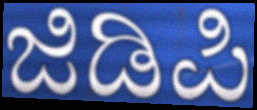
ಜಿಡಿಪಿ